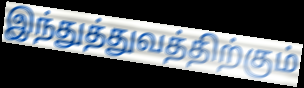
இந்துத்துவத்திற்கும்